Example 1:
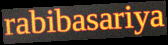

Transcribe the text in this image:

rabibasariya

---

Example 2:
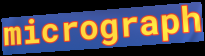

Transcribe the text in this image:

micrograph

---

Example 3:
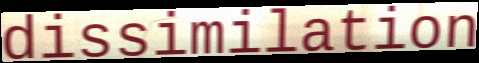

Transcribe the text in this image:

dissimilation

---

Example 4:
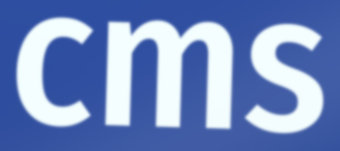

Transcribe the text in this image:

cms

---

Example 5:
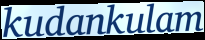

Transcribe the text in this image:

kudankulam